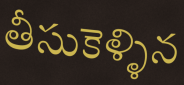
తీసుకెళ్ళిన